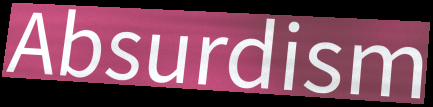
Absurdism